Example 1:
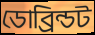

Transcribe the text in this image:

ডোব্রিন্ডট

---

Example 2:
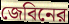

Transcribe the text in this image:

জেবিনের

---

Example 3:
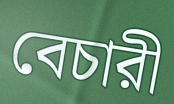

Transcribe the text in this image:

বেচারী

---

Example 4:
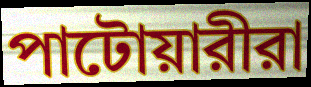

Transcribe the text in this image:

পাটোয়ারীরা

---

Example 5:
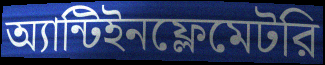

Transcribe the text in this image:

অ্যান্টিইনফ্লেমেটরি